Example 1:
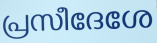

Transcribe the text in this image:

പ്രസീദേശേ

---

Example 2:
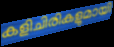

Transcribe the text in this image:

കളിചിരികളുമായി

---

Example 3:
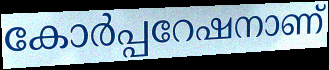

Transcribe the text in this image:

കോർപ്പറേഷനാണ്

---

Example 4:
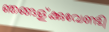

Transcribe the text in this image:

ഞങ്ങള്ക്കുവേണ്ടി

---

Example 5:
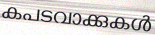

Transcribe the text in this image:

കപടവാക്കുകൾ